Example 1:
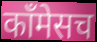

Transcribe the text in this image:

कॉंमेसच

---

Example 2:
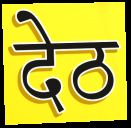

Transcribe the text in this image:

देठ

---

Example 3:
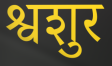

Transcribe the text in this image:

श्वशुर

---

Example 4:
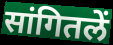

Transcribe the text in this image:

सांगितलें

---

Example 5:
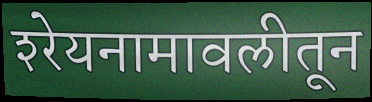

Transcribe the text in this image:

श्रेयनामावलीतून